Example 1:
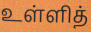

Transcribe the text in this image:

உள்ளித்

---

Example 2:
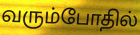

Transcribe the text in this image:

வரும்போதில்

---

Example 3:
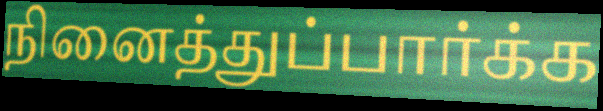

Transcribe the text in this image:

நினைத்துப்பார்க்க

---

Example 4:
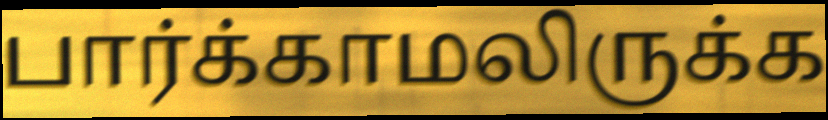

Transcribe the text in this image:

பார்க்காமலிருக்க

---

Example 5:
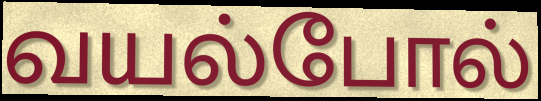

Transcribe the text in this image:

வயல்போல்